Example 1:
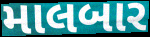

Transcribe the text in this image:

માલબાર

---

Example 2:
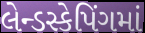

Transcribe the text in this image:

લેન્ડસ્કેપિંગમાં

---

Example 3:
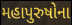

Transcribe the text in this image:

મહાપુરુષોના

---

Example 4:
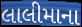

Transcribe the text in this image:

લાલીમાના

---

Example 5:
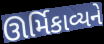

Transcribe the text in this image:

ઊર્મિકાવ્યને